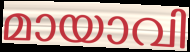
മായാവി